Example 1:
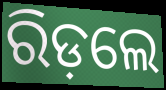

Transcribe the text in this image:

ରିଡ଼ଲେ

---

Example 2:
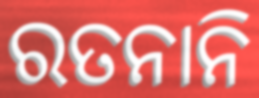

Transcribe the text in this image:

ରତନାନି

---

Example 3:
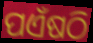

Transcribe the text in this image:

ପଏଁଷଠି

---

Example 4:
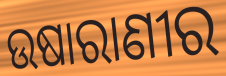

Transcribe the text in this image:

ଉଷାରାଣୀର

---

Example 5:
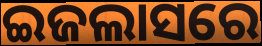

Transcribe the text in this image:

ଇଜଲାସରେ